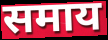
समाय